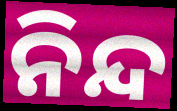
ନିନ୍ଦ